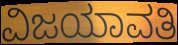
ವಿಜಯಾವತಿ